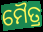
ମୈତ୍ର